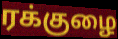
ரக்குழை